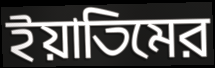
ইয়াতিমের